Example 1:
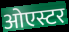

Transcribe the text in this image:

ओएस्टर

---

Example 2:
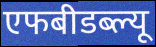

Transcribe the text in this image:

एफबीडब्ल्यू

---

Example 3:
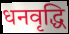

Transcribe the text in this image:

धनवृद्धि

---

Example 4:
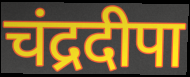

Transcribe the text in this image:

चंद्रदीपा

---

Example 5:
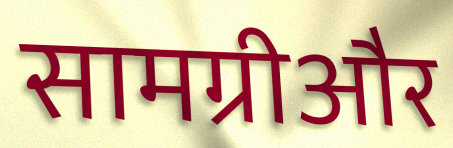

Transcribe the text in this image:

सामग्रीऔर